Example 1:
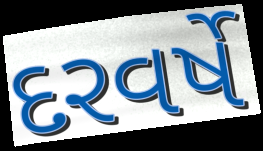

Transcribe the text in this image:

દરવર્ષે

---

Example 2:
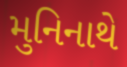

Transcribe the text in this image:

મુનિનાથે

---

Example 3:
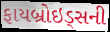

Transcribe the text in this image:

ફાયબ્રોઇડ્સની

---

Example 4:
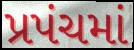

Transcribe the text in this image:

પ્રપંચમાં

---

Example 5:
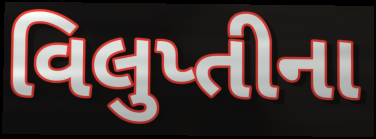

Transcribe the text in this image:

વિલુપ્તીના